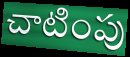
చాటింపు